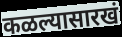
कळल्यासारखं